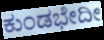
ಕುಂಡಭೇದೀ